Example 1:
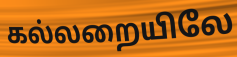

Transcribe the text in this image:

கல்லறையிலே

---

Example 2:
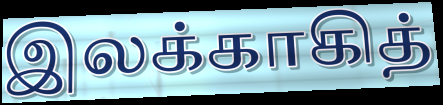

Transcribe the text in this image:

இலக்காகித்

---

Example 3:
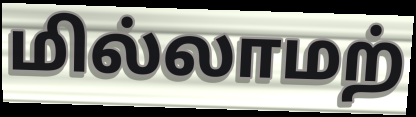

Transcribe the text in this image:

மில்லாமற்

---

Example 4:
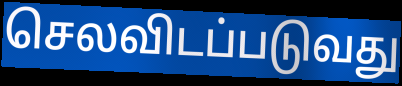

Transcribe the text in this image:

செலவிடப்படுவது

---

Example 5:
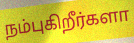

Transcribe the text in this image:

நம்புகிறீர்களா